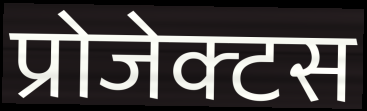
प्रोजेक्‍टस